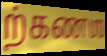
ற்கணஶ